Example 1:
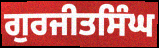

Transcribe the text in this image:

ਗੁਰਜੀਤਸਿੰਘ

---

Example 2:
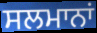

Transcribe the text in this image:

ਸਲਮਾਨਾਂ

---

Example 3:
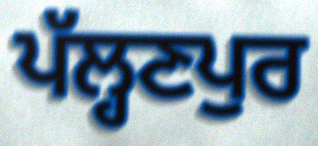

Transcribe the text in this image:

ਪੱਲ੍ਹਣਪੁਰ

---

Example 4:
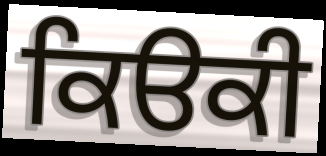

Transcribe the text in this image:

ਕਿੳਕੀ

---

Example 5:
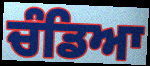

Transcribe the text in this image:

ਚੰਡਿਆ